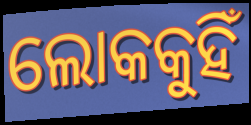
ଲୋକକୁହିଁ